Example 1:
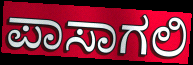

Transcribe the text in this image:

ಪಾಸಾಗಲಿ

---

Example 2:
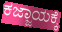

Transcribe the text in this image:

ಕಜ್ಜಾಯಕ್ಕೆ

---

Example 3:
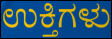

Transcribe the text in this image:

ಉಕ್ತಿಗಳು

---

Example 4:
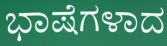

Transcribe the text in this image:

ಭಾಷೆಗಳಾದ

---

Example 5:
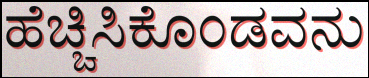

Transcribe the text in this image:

ಹೆಚ್ಚಿಸಿಕೊಂಡವನು